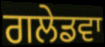
ਗਲੇਡਵਾ